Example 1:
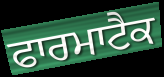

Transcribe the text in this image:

ਫਾਰਮਾਟੈਕ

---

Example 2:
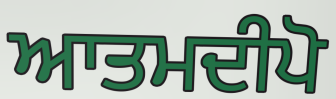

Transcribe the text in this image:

ਆਤਮਦੀਪੋ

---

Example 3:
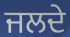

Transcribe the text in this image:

ਜਲਦੇ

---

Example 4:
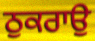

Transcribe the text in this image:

ਠੁਕਰਾਉ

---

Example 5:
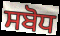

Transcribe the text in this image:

ਸਬੋਧ